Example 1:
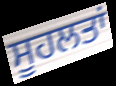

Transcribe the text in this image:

ਸੂਹਲਤਾਂ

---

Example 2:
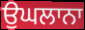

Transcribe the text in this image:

ਉਘਲਾਨਾ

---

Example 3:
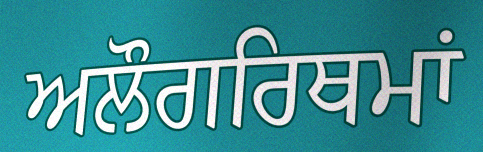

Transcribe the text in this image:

ਅਲੌਗਰਿਥਮਾਂ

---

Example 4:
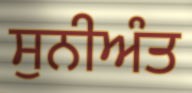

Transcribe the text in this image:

ਸੁਨੀਅੰਤ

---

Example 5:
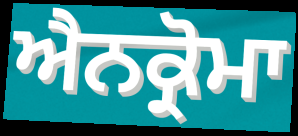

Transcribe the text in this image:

ਐਨਕ੍ਰੋਮਾ